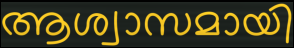
ആശ്വാസമായി